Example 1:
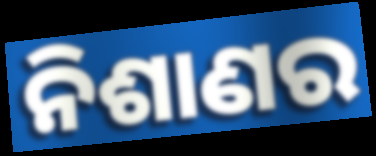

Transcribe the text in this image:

ନିଶାଣର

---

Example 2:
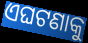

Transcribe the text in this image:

ଏଘଟଣାକୁ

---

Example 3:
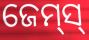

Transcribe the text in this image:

ଜେମ୍‌ସ୍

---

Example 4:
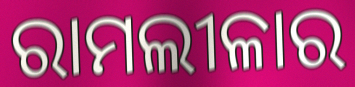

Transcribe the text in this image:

ରାମଲୀଳାର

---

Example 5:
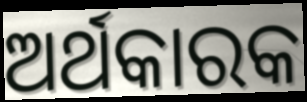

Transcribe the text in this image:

ଅର୍ଥକାରକ